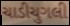
ચાડીચુગલી